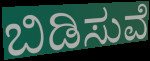
ಬಿಡಿಸುವೆ